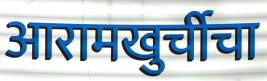
आरामखुर्चीचा